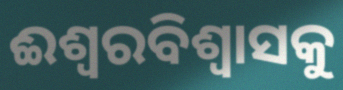
ଈଶ୍ୱରବିଶ୍ଵାସକୁ